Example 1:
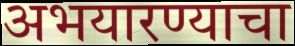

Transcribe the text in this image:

अभयारण्याचा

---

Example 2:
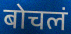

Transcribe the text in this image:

बोचलं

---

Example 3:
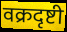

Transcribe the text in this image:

वक्रदृष्टी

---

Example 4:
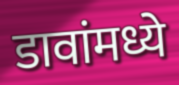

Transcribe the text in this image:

डावांमध्ये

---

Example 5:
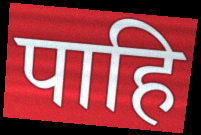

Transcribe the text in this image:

पाहि